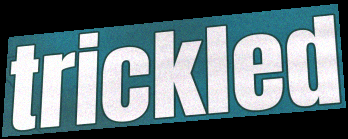
trickled